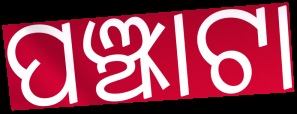
ପଞ୍ଝାଟା